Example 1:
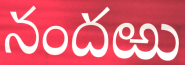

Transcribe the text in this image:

నందఱు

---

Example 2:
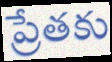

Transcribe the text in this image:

ప్రేతకు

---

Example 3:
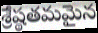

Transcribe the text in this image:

శ్రేష్ఠతమమైన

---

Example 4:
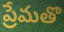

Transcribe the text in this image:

ప్రేమతొ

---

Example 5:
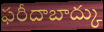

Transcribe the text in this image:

ఫరీదాబాద్కు